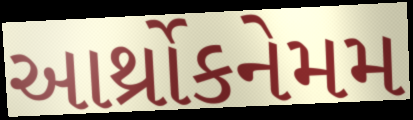
આર્થ્રોકનેમમ